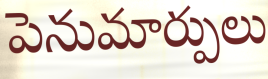
పెనుమార్పులు